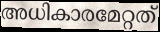
അധികാരമേറ്റത്